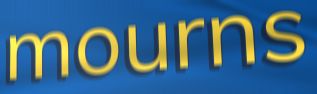
mourns